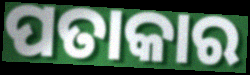
ପତାକାର